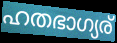
ഹതഭാഗ്യര്